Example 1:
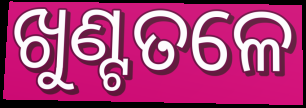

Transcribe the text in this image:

ଖୁଣ୍ଟତଳେ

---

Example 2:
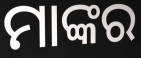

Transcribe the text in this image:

ମାଙ୍କର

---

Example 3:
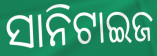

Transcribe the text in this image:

ସାନିଟାଇଜ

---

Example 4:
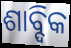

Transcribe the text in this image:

ଶାବ୍ଦିକ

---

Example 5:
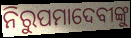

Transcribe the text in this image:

ନିରୁପମାଦେବୀଙ୍କୁ